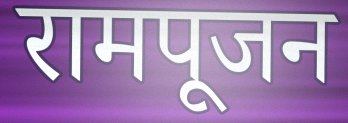
रामपूजन